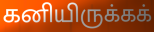
கனியிருக்கக்